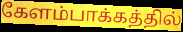
கேளம்பாக்கத்தில்